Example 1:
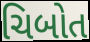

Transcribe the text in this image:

ચિબોત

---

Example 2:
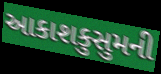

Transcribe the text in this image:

આકાશકુસુમની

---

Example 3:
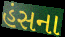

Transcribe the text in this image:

હંસના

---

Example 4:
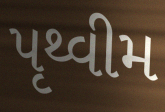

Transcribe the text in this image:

પૃથ્વીમ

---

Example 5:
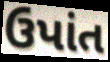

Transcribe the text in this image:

ઉપાંત